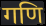
गणि